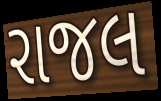
રાજલ